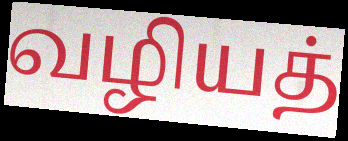
வழியத்